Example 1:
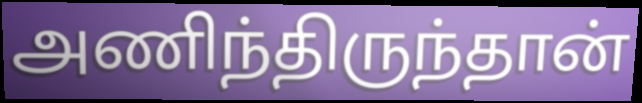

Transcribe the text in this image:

அணிந்திருந்தான்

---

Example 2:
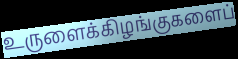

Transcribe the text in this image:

உருளைக்கிழங்குகளைப்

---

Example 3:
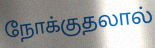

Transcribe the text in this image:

நோக்குதலால்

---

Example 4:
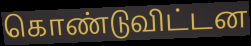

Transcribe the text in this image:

கொண்டுவிட்டன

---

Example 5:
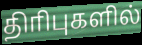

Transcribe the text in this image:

திரிபுகளில்